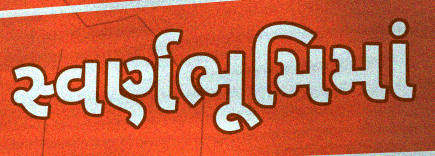
સ્વર્ણભૂમિમાં